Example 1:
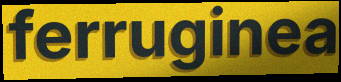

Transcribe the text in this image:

ferruginea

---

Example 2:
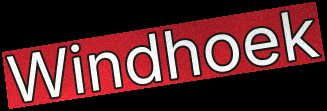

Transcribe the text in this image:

Windhoek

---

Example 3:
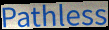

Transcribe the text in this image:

Pathless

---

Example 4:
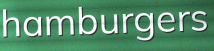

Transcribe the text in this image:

hamburgers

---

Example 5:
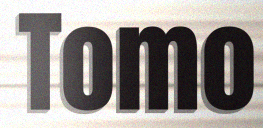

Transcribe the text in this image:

Tomo